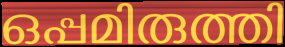
ഒപ്പമിരുത്തി